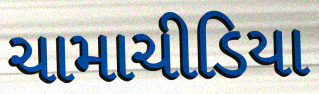
ચામાચીડિયા